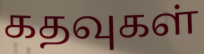
கதவுகள்